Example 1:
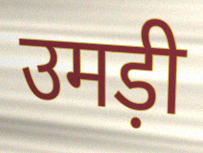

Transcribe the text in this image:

उमड़ी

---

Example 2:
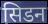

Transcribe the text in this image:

सिडन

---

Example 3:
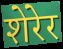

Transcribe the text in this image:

शेरेर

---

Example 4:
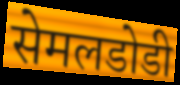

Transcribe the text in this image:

सेमलडोडी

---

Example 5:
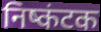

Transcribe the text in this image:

निष्कंटक